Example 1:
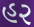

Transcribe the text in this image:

હર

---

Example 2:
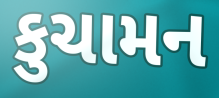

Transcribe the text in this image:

કુચામન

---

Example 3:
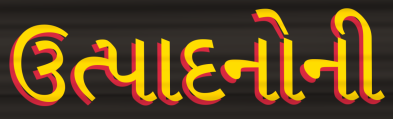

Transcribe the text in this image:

ઉત્પાદનોની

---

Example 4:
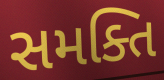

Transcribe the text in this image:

સમક્તિ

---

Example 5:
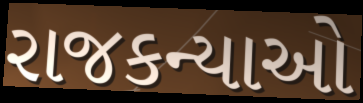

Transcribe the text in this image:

રાજકન્યાઓ